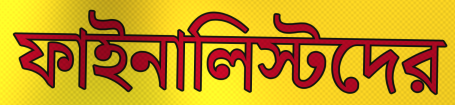
ফাইনালিস্টদের